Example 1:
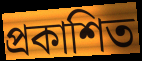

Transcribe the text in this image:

প্ৰকাশিত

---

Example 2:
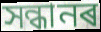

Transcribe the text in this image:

সন্ধানৰ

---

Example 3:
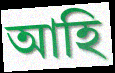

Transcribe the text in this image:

আহি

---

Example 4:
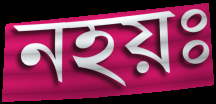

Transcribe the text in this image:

নহয়ঃ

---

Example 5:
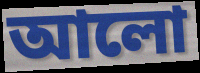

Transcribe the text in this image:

আলো